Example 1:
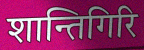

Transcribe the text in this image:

शान्तिगिरि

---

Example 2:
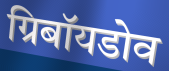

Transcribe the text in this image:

ग्रिबॉयडोव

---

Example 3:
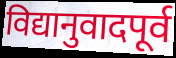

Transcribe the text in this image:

विद्यानुवादपूर्व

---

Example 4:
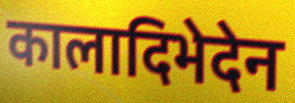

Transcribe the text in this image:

कालादिभेदेन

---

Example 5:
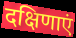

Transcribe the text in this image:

दक्षिणाएं